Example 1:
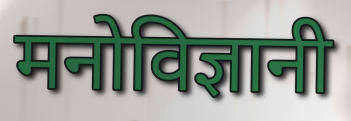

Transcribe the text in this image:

मनोविज्ञानी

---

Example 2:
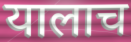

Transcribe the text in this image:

यालाच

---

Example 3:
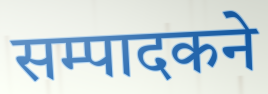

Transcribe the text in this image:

सम्पादकने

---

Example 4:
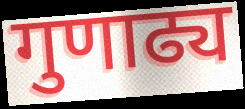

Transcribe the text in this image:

गुणाढ्य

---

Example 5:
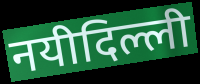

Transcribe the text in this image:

नयीदिल्ली